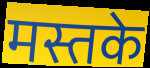
मस्तके